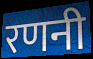
रणनी